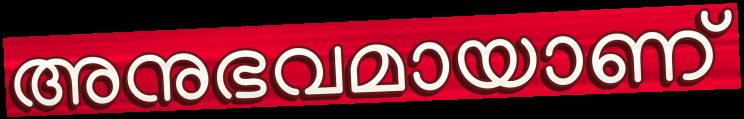
അനുഭവമായാണ്